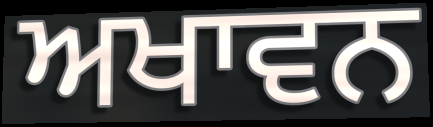
ਅਖਾਵਨ